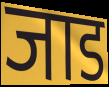
जाड